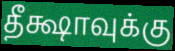
தீக்ஷாவுக்கு